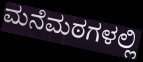
ಮನೆಮಠಗಳಲ್ಲಿ